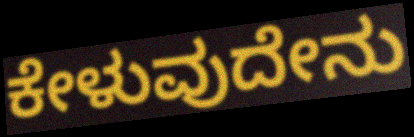
ಕೇಳುವುದೇನು